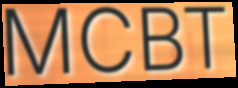
MCBT